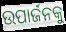
ଉପାର୍ଜନକୁ